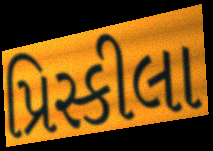
પ્રિસ્કીલા